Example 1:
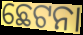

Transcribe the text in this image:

ଛେଟନା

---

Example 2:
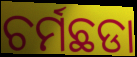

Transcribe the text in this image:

ଚର୍ମଛଡା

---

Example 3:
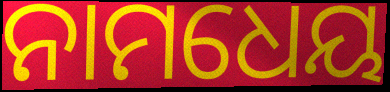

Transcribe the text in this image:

ନାମଧେୟ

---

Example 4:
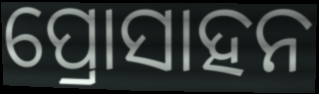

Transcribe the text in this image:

ପ୍ରୋସାହନ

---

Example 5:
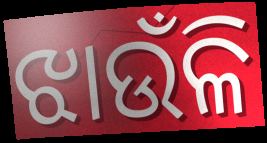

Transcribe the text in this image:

ଝାଉଁଳି